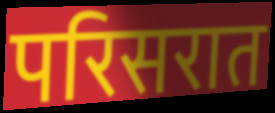
परिसरात